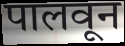
पालवून